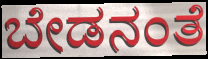
ಬೇಡನಂತೆ